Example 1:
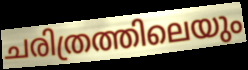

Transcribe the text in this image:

ചരിത്രത്തിലെയും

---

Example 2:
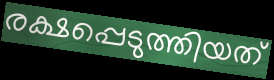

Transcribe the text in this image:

രക്ഷപ്പെടുത്തിയത്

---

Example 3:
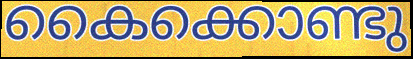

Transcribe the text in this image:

കൈക്കൊണ്ടു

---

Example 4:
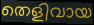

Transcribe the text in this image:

തെളിവായ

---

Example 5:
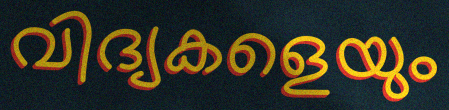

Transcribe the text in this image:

വിദ്യകളെയും